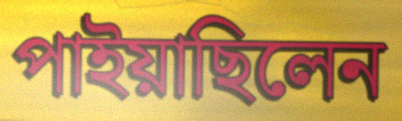
পাইয়াছিলেন